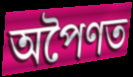
অপৈণত